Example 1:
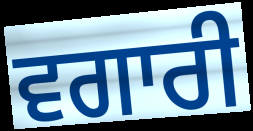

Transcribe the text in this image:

ਵਗਾਰੀ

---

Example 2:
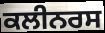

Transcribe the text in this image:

ਕਲੀਨਰਸ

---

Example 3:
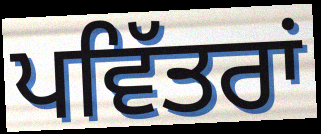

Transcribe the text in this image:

ਪਵਿੱਤਰਾਂ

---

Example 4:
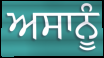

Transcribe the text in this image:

ਅਸਾਨੂੰ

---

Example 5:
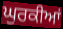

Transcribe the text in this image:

ਘੁਰਕੀਆਂ